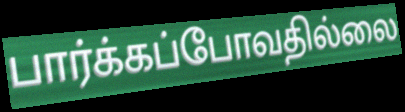
பார்க்கப்போவதில்லை